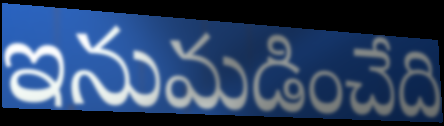
ఇనుమడించేది